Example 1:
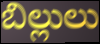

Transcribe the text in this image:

బిల్లులు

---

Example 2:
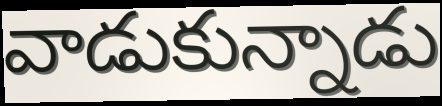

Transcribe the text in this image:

వాడుకున్నాడు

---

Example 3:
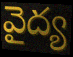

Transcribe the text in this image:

వైద్య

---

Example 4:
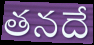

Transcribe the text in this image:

తనదే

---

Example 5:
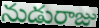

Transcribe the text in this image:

నుడురాజు